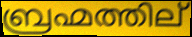
ബ്രഹ്മത്തില്